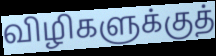
விழிகளுக்குத்